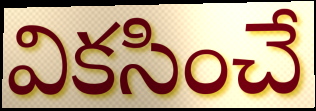
వికసించే